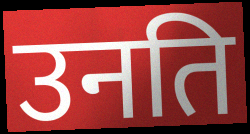
उनति